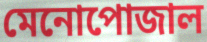
মেনোপোজাল